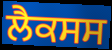
ਲੈਕਸਸ